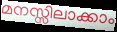
മനസ്സിലാക്കാം